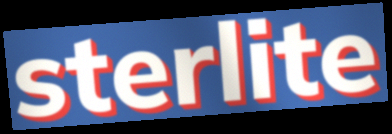
sterlite